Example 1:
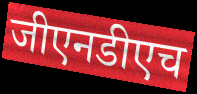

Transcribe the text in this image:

जीएनडीएच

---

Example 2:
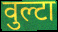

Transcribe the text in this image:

वुल्टा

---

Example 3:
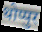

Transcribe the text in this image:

थोप्पुर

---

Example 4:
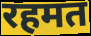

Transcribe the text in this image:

रहमत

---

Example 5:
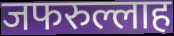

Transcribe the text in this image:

जफरुल्लाह